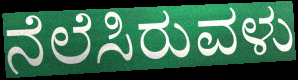
ನೆಲೆಸಿರುವಳು